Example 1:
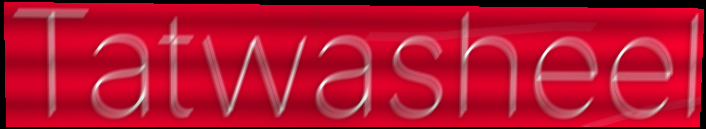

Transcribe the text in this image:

Tatwasheel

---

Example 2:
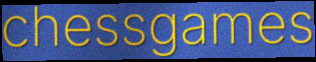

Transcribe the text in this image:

chessgames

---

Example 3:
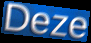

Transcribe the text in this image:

Deze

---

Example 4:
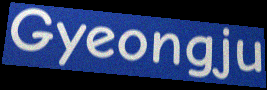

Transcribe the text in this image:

Gyeongju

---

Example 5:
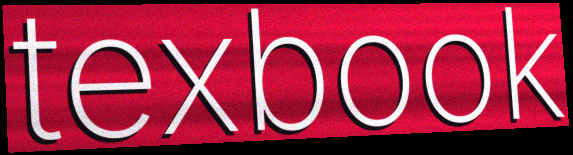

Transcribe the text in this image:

texbook